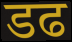
डढ